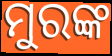
ମୁରଙ୍କ